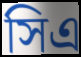
সিএ